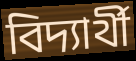
বিদ্যার্থী